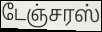
டேஞ்சரஸ்